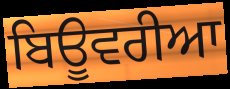
ਬਿਊਵਰੀਆ